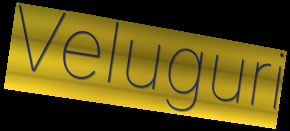
Veluguri